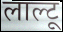
लाल्टू